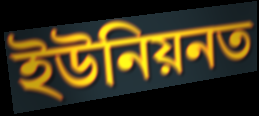
ইউনিয়নত